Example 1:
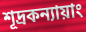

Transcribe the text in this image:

শূদ্রকন্যায়াং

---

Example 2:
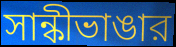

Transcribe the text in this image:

সান্কীভাঙার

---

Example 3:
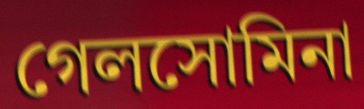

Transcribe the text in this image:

গেলসোমিনা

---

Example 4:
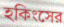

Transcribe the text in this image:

হকিংসের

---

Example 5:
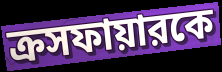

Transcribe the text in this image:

ক্রসফায়ারকে